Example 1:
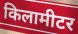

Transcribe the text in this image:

किलामीटर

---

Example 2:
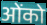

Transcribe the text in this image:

ओंको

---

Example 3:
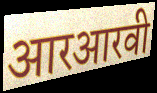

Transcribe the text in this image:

आरआरवी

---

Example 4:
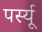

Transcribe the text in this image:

पर्स्यू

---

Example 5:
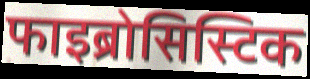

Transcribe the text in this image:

फाइब्रोसिस्टिक